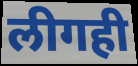
लीगही